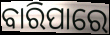
ବାରିପାରେ